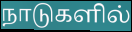
நாடுகளில்